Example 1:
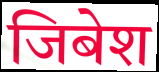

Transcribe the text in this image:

जिबेश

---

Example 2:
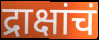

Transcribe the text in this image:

द्राक्षांचं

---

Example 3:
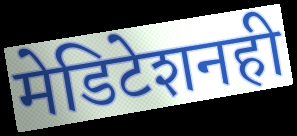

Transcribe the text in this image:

मेडिटेशनही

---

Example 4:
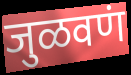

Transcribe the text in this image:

जुळवणं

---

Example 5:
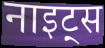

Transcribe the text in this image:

नाइट्‌स